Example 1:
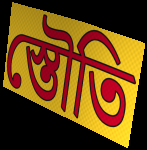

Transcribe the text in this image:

স্তৌতি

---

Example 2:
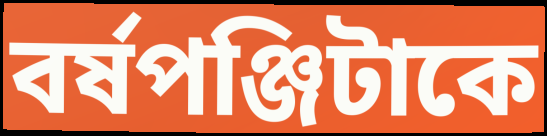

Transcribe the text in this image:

বর্ষপঞ্জিটাকে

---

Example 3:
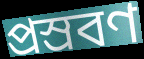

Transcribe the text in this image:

প্রস্রবণ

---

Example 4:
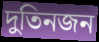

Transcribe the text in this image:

দুতিনজন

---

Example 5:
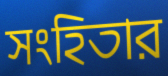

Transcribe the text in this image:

সংহিতার